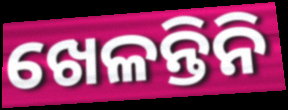
ଖେଳନ୍ତିନି